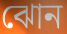
ঝোন